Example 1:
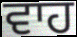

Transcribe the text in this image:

ਵਾਹ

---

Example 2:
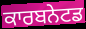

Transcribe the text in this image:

ਕਾਰਬਨੇਟਡ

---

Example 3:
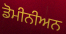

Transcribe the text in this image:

ਡੋਮੀਨੀਅਨ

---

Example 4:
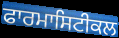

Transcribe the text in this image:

ਫਾਰਮਾਸਿਟੀਕਲ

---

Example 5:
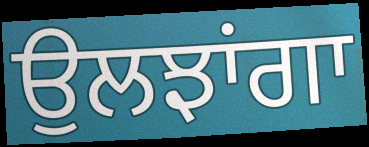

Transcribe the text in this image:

ਉਲਝਾਂਗਾ